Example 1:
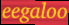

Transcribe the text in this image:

eegaloo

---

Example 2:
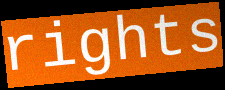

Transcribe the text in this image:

rights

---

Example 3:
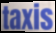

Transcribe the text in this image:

taxis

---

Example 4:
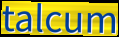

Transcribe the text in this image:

talcum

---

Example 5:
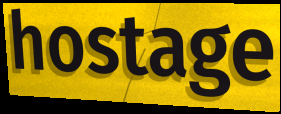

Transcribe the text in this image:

hostage